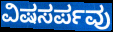
ವಿಷಸರ್ಪವು